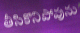
తీసికొనిపోవును